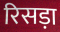
रिसड़ा